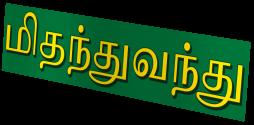
மிதந்துவந்து